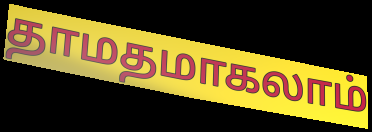
தாமதமாகலாம்